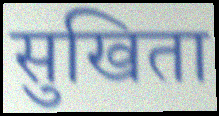
सुखिता